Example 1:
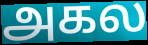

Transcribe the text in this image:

அகல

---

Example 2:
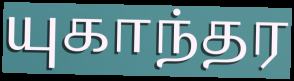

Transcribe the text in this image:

யுகாந்தர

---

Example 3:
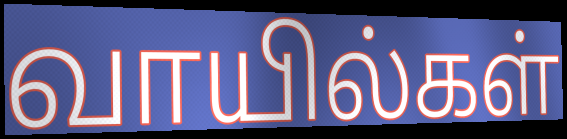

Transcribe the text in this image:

வாயில்கள்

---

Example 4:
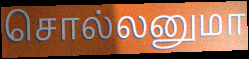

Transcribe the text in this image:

சொல்லனுமா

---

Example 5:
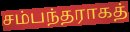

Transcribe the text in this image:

சம்பந்தராகத்